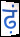
ढ़ं